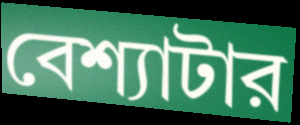
বেশ্যাটার